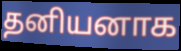
தனியனாக